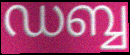
ഡബ്ബ